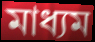
মাধ্যম